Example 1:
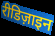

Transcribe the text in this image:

रीडिज़ाइन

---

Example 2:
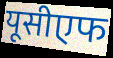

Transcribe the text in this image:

यूसीएफ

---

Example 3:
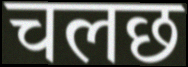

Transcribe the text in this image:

चलछ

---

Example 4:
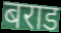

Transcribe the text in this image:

बराड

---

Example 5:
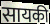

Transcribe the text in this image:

सायकी